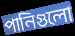
পানিগুলো